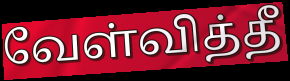
வேள்வித்தீ